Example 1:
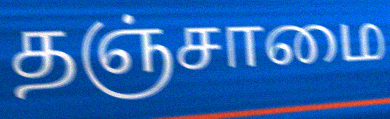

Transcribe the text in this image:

தஞ்சாமை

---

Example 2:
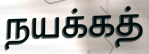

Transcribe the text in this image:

நயக்கத்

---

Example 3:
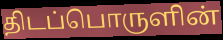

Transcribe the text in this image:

திடப்பொருளின்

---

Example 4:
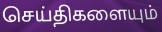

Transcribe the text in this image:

செய்திகளையும்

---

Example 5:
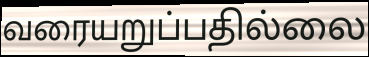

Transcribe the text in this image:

வரையறுப்பதில்லை